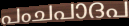
പംചപാദപ